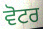
ਵੋਟਰ